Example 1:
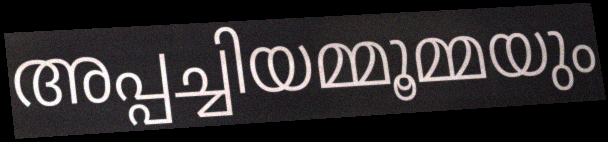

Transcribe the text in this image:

അപ്പച്ചിയമ്മൂമ്മയും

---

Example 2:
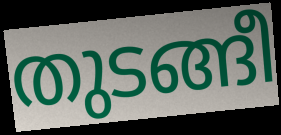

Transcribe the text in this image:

തുടങ്ങീ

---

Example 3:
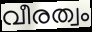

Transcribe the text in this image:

വീരത്വം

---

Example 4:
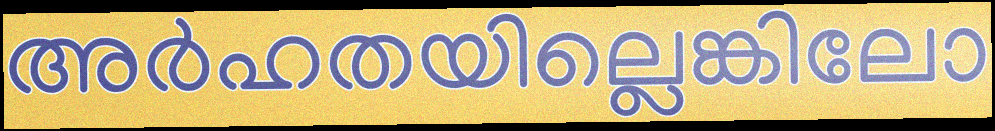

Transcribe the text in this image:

അർഹതയില്ലെങ്കിലോ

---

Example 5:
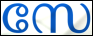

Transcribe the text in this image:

സേ